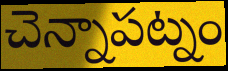
చెన్నాపట్నం